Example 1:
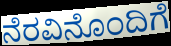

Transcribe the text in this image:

ನೆರವಿನೊಂದಿಗೆ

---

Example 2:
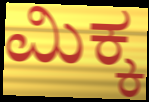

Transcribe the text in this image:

ಮಿಕ್ಕ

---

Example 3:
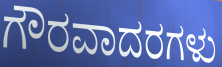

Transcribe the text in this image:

ಗೌರವಾದರಗಳು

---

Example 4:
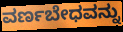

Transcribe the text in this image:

ವರ್ಣಬೇಧವನ್ನು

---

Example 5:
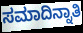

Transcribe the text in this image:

ಸಮಾದಿನ್ನಾತಿ